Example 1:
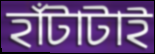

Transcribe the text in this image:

হাঁটাটাই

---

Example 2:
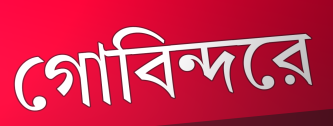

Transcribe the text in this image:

গোবিন্দরে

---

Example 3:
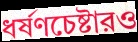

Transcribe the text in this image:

ধর্ষণচেষ্টারও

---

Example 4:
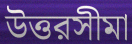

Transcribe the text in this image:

উত্তরসীমা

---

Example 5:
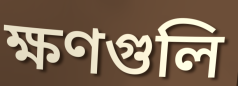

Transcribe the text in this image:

ক্ষণগুলি